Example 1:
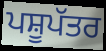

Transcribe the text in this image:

ਪਸ਼ੂਪੱਤਰ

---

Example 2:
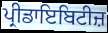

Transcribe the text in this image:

ਪ੍ਰੀਡਾਇਬਿਟੀਜ਼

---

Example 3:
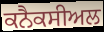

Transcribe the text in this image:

ਕਨੈਕਸੀਅਲ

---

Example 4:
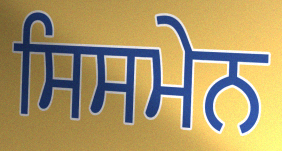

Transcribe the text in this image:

ਸਿਸਮੇਨ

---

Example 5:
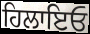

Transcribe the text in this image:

ਹਿਲਾਇਓ